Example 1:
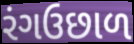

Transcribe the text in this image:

રંગઉછાળ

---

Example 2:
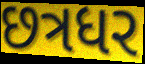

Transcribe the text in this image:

છત્રધર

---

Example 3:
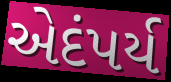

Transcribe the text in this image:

એદંપર્ય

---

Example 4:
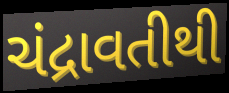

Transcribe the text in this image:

ચંદ્રાવતીથી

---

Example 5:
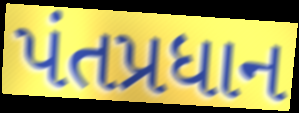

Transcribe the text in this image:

પંતપ્રધાન